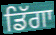
ਡਿੱਗਾ